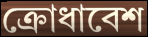
ক্রোধাবেশ